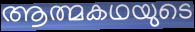
ആത്മകഥയുടെ